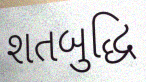
શતબુદ્ધિ